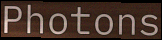
Photons